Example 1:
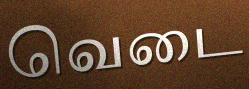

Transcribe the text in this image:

வெடை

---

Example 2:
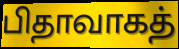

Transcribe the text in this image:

பிதாவாகத்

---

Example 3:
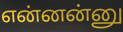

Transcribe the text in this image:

என்னன்னு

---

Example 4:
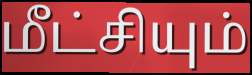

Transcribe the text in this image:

மீட்சியும்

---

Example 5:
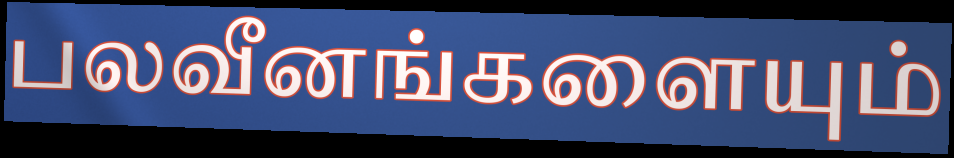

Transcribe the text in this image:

பலவீனங்களையும்